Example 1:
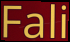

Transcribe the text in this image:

Fali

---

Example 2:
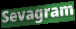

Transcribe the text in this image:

Sevagram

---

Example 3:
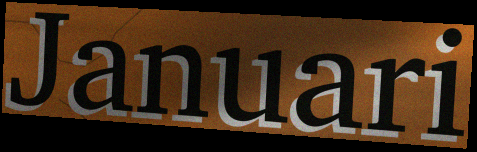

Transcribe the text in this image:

Januari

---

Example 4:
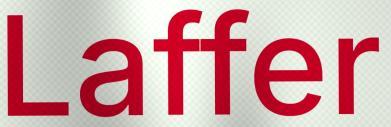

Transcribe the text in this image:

Laffer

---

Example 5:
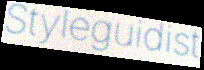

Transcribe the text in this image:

Styleguidist